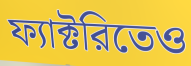
ফ্যাক্টরিতেও